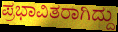
ಪ್ರಭಾವಿತರಾಗಿದ್ದು